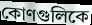
কোণগুলিকে